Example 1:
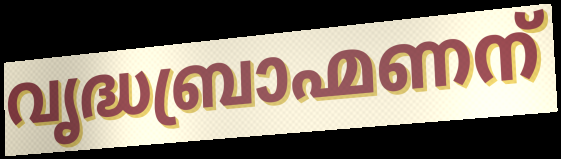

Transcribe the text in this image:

വൃദ്ധബ്രാഹ്മണന്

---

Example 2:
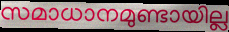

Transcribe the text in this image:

സമാധാനമുണ്ടായില്ല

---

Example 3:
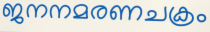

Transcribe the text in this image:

ജനനമരണചക്രം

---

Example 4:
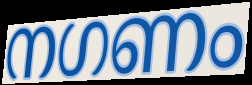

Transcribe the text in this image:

നഗണം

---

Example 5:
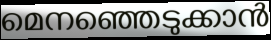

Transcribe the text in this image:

മെനഞ്ഞെടുക്കാൻ